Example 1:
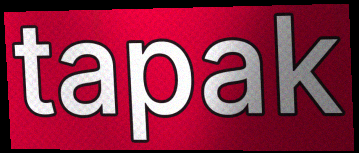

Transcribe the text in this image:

tapak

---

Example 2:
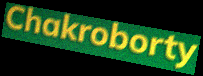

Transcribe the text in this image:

Chakroborty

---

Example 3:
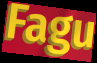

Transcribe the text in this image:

Fagu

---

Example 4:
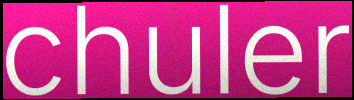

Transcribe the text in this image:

chuler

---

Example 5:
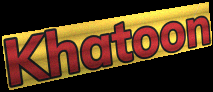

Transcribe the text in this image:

Khatoon